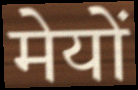
मेयों